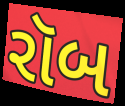
રૉબ